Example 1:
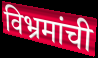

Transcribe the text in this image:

विभ्रमांची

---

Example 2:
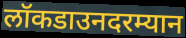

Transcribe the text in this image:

लॉकडाउनदरम्यान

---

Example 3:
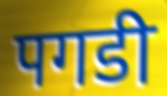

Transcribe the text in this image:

पगडी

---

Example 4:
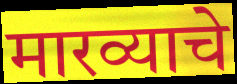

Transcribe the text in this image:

मारव्याचे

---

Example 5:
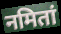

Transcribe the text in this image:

नमितां